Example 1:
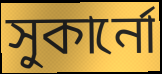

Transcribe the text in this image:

সুকার্নো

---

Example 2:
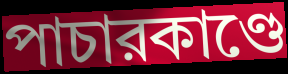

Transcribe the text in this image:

পাচারকাণ্ডে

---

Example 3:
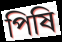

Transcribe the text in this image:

পিষি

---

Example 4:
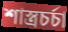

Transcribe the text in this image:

শাস্ত্রচর্চা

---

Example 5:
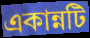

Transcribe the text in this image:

একান্নটি